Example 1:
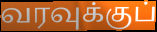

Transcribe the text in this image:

வரவுக்குப்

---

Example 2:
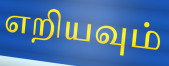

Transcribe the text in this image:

எறியவும்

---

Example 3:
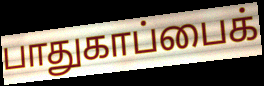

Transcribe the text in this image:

பாதுகாப்பைக்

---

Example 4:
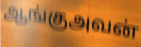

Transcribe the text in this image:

ஆங்குஅவன்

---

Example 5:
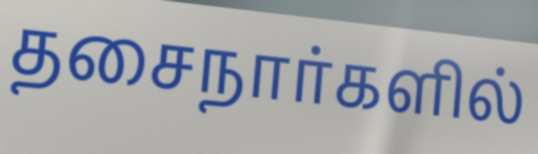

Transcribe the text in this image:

தசைநார்களில்